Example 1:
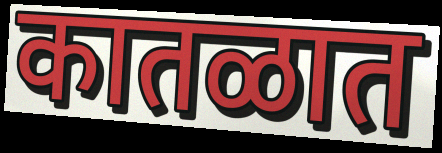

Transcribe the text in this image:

कातळात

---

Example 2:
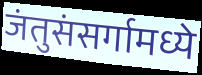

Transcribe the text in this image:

जंतुसंसर्गामध्ये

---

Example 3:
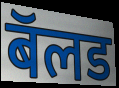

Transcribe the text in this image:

बॅलड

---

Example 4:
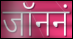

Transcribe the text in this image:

जॉननं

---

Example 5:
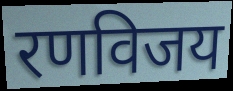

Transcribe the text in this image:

रणविजय